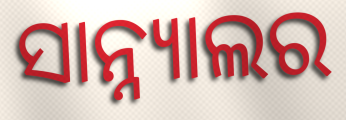
ସାନ୍ନ୍ୟାଲର